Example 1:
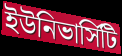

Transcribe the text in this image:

ইউনিভার্সিটি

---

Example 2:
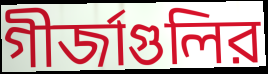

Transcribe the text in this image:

গীর্জাগুলির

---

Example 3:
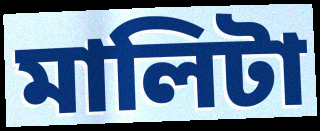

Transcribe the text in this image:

মালিটা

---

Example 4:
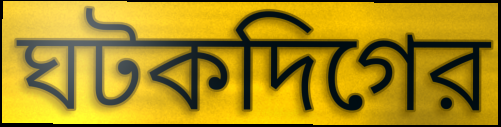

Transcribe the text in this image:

ঘটকদিগের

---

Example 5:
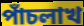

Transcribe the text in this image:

পাঁচলাখ